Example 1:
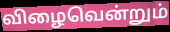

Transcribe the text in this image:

விழைவென்றும்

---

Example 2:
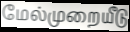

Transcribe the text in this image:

மேல்முறையீடு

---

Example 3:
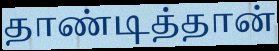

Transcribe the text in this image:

தாண்டித்தான்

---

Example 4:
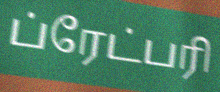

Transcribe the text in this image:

ப்ரேட்பரி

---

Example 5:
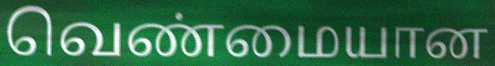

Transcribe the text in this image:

வெண்மையான